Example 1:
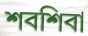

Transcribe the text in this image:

শবশিবা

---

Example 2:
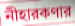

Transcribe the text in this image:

নীহারকণার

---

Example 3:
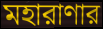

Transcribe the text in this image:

মহারাণার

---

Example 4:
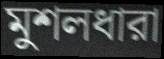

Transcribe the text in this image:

মুশলধারা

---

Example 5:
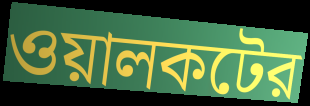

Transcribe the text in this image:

ওয়ালকটের